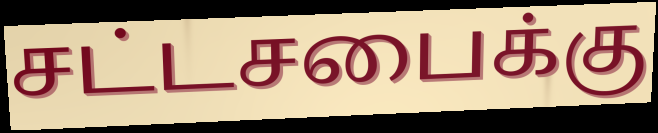
சட்டசபைக்கு